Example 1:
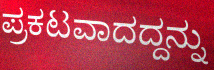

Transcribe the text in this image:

ಪ್ರಕಟವಾದದ್ದನ್ನು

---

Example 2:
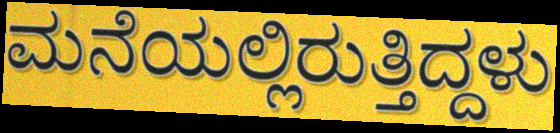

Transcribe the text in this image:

ಮನೆಯಲ್ಲಿರುತ್ತಿದ್ದಳು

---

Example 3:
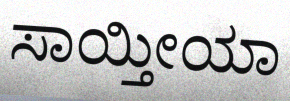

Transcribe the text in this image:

ಸಾಯ್ತೀಯಾ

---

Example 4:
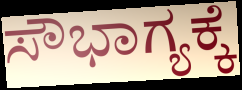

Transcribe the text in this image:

ಸೌಭಾಗ್ಯಕ್ಕೆ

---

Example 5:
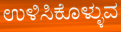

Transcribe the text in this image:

ಉಳಿಸಿಕೊಳ್ಳುವ